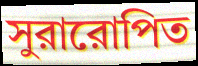
সুরারোপিত